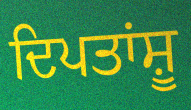
ਦਿਪਤਾਂਸ਼ੂ